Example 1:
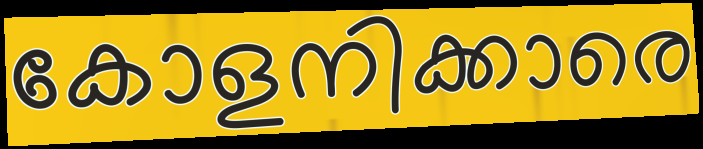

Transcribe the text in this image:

കോളനിക്കാരെ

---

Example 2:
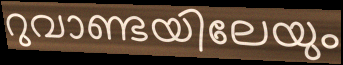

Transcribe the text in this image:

റുവാണ്ടയിലേയും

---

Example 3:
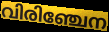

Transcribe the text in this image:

വിരിഞ്ചേന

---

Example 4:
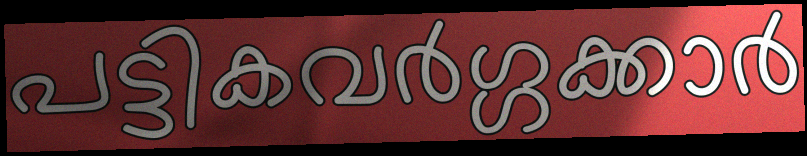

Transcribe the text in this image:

പട്ടികവർഗ്ഗക്കാർ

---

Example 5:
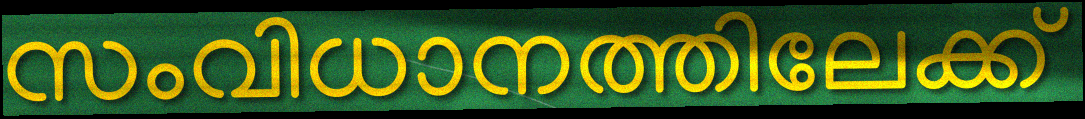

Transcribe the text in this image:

സംവിധാനത്തിലേക്ക്